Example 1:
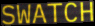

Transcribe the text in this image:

SWATCH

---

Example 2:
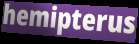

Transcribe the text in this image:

hemipterus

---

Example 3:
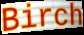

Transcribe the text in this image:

Birch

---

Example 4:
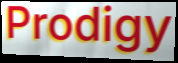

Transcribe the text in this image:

Prodigy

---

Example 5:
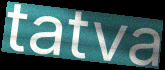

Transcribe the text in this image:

tatva